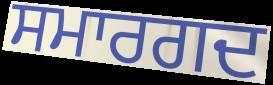
ਸਮਾਰਗਦ